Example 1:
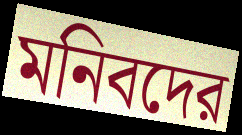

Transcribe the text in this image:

মনিবদের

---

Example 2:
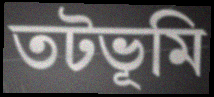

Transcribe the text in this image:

তটভূমি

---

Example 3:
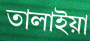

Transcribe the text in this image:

তালাইয়া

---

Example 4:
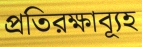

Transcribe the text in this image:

প্রতিরক্ষাব্যূহ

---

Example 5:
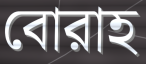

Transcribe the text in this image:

বোরাহ